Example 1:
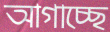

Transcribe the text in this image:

আগাচ্ছে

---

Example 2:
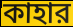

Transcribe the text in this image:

কাহার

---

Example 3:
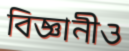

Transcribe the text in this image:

বিজ্ঞানীও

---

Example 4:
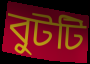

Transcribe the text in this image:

বুটটি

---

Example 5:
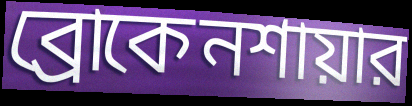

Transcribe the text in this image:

ব্রোকেনশায়ার